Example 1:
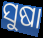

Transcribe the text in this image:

ସୁଷା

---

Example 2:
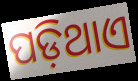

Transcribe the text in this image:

ପଡ଼ିଥାଏ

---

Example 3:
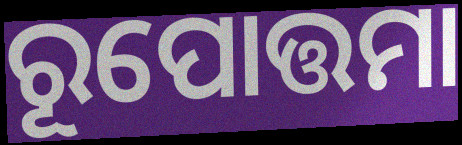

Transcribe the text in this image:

ରୂପୋତ୍ତମା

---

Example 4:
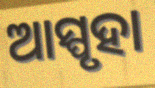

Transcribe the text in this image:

ଆସ୍ପୃହା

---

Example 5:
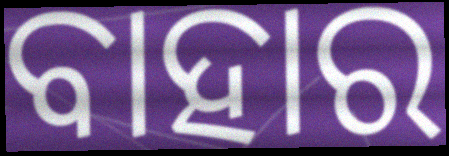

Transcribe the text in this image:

ବାହାର